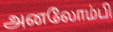
அனலோம்பி